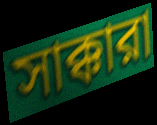
সাক্কারা